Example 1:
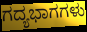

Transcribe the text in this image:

ಗದ್ಯಭಾಗಗಳು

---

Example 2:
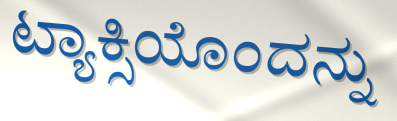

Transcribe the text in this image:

ಟ್ಯಾಕ್ಸಿಯೊಂದನ್ನು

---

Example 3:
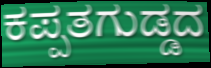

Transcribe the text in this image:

ಕಪ್ಪತಗುಡ್ಡದ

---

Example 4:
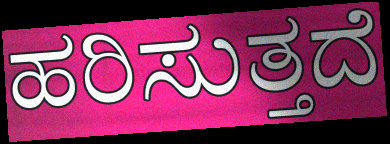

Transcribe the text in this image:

ಹರಿಸುತ್ತದೆ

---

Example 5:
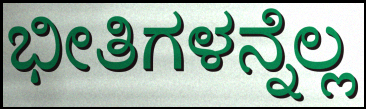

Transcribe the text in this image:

ಭೀತಿಗಳನ್ನೆಲ್ಲ